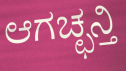
ಆಗಚ್ಛನ್ತಿ